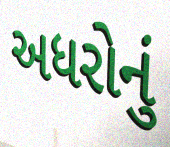
અધરોનું